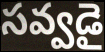
సవ్వడై